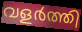
വളർത്തി